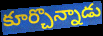
కూర్చొన్నాడు